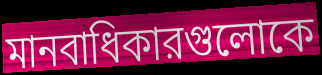
মানবাধিকারগুলোকে